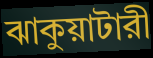
ঝাকুয়াটারী